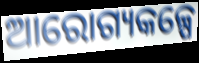
ଆରୋଗ୍ୟକଳ୍ପେ